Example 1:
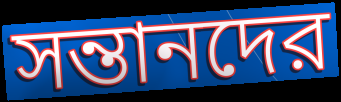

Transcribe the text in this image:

সন্তানদের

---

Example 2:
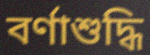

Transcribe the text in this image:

বর্ণাশুদ্ধি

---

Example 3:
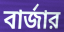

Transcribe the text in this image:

বার্জার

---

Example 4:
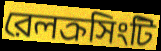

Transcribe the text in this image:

রেলক্রসিংটি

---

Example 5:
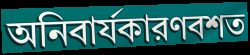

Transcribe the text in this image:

অনিবার্যকারণবশত